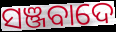
ସଞ୍ଜବାଦେ